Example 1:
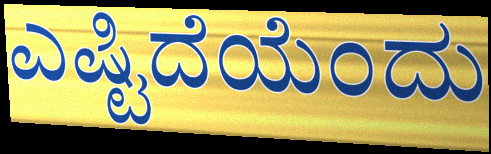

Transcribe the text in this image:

ಎಷ್ಟಿದೆಯೆಂದು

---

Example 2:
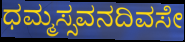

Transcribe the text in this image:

ಧಮ್ಮಸ್ಸವನದಿವಸೇ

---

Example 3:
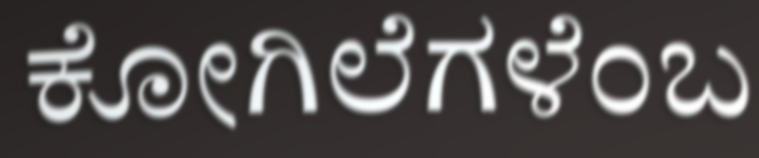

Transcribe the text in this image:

ಕೋಗಿಲೆಗಳೆಂಬ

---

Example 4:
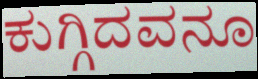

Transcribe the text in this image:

ಕುಗ್ಗಿದವನೂ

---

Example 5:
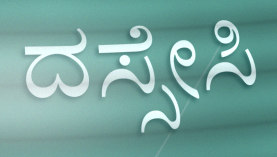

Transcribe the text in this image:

ದಸ್ಸೇಸಿ